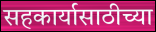
सहकार्यासाठीच्या